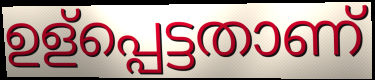
ഉള്പ്പെട്ടതാണ്